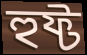
হুফ্ট